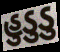
હુડુડુ